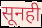
सूनही